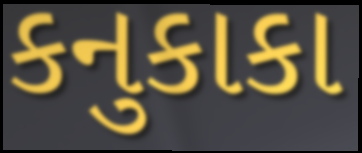
કનુકાકા